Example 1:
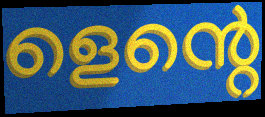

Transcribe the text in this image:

ളെന്റെ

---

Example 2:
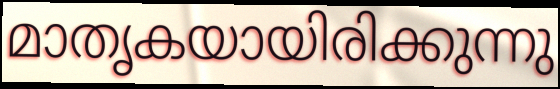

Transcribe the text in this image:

മാതൃകയായിരിക്കുന്നു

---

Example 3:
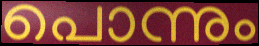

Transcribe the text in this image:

പൊന്നും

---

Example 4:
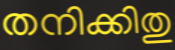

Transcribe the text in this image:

തനിക്കിതു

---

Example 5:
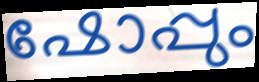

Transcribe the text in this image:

ഷോപ്പും